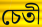
চেতী